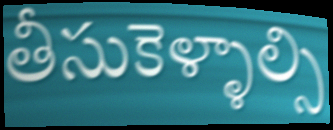
తీసుకెళ్ళాల్సి